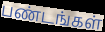
பண்டங்கள்